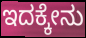
ಇದಕ್ಕೇನು